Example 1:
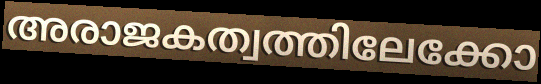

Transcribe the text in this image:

അരാജകത്വത്തിലേക്കോ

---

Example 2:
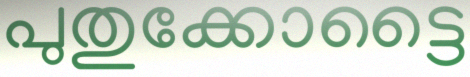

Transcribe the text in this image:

പുതുക്കോട്ടൈ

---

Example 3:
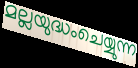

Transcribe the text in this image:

മല്ലയുദ്ധംചെയ്യുന്ന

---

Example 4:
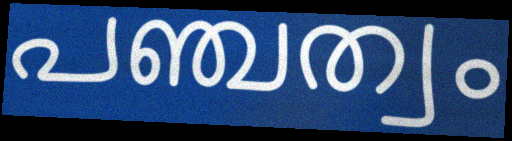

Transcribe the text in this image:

പഞ്ചത്വം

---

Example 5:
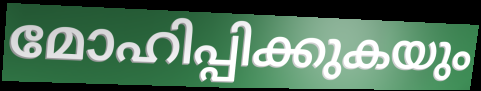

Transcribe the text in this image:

മോഹിപ്പിക്കുകയും